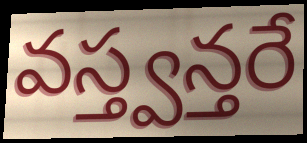
వస్త్వన్తరే